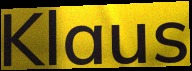
Klaus